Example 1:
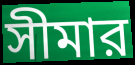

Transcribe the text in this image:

সীমার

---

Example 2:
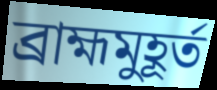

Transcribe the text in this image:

ব্রাহ্মমুহূর্ত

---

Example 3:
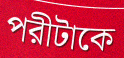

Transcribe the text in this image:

পরীটাকে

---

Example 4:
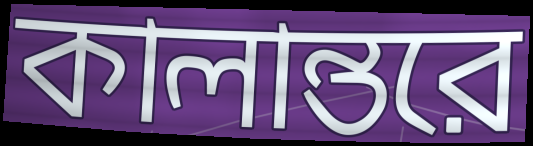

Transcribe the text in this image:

কালান্তরে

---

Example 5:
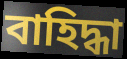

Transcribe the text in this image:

বাহিদ্ধা